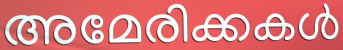
അമേരിക്കകൾ